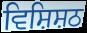
ਵਿਸ਼ਿਸ਼ਠ